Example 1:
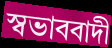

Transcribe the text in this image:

স্বভাববাদী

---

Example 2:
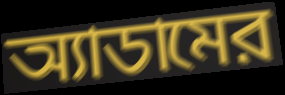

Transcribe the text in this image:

অ্যাডামের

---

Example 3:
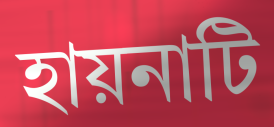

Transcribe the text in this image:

হায়নাটি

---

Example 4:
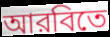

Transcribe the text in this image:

আরবিতে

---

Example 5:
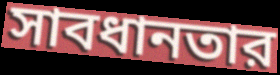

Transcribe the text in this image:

সাবধানতার